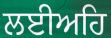
ਲਈਅਹਿ